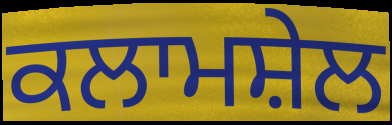
ਕਲਾਮਸ਼ੇਲ